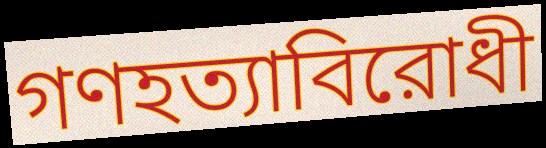
গণহত্যাবিরোধী